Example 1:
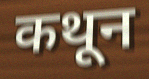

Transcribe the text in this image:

कथून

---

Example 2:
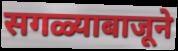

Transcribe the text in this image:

सगळ्याबाजूने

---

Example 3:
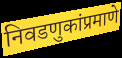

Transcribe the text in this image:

निवडणुकांप्रमाणे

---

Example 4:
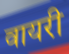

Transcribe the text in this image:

वायरी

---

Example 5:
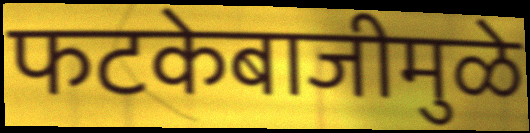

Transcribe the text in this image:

फटकेबाजीमुळे